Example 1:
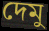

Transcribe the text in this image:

দেমু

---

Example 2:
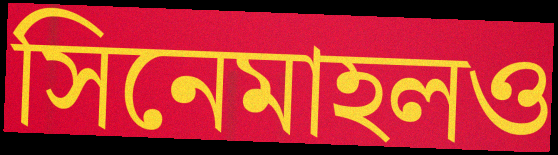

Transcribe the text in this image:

সিনেমাহলও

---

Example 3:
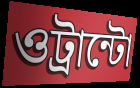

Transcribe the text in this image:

ওট্রান্টো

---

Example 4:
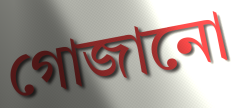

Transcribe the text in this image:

গোজানো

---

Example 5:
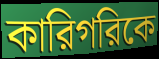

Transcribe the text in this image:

কারিগরিকে